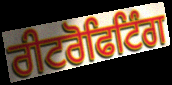
ਰੀਟਰੋਫਿਟਿੰਗ